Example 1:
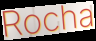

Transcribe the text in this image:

Rocha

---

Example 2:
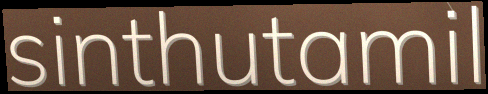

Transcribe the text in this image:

sinthutamil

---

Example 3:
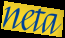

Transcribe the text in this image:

neta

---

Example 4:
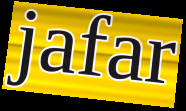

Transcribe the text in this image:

jafar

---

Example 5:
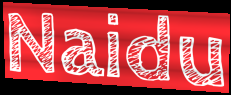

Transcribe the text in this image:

Naidu